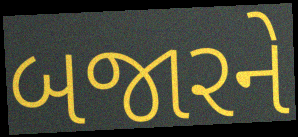
બજારને